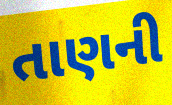
તાણની